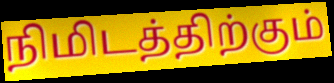
நிமிடத்திற்கும்